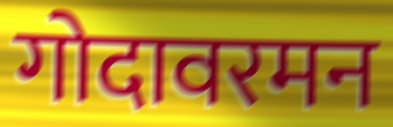
गोदावरमन